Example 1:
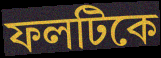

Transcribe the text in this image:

ফলটিকে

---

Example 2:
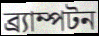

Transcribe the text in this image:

ব্র্যাম্পটন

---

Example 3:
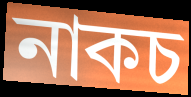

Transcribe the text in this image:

নাকচ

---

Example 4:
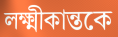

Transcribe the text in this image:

লক্ষ্মীকান্তকে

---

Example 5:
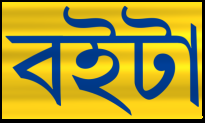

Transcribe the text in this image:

বইটা